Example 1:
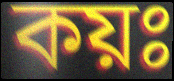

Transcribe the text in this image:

কয়ঃ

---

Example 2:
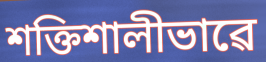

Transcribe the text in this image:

শক্তিশালীভাৱে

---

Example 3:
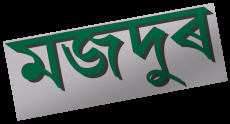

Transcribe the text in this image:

মজদুৰ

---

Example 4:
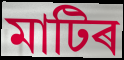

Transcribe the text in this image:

মাটিৰ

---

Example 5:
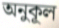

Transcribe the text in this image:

অনুকূল